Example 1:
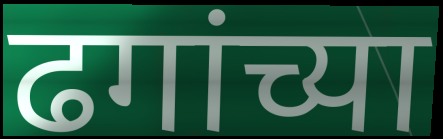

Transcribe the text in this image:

ढगांच्या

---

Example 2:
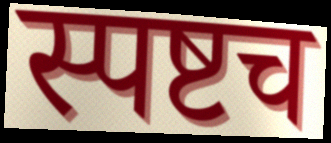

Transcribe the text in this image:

स्पष्टच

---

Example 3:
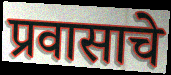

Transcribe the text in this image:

प्रवासाचे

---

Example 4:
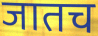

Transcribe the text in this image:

जातच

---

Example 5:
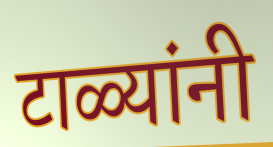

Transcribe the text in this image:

टाळ्यांनी